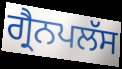
ਗ੍ਰੈਨਪਲੱਸ